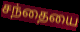
சந்தையை